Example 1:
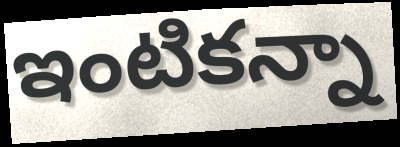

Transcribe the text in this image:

ఇంటికన్నా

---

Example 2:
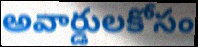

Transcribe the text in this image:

అవార్డులకోసం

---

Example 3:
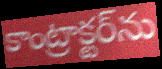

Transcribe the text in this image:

కాంట్రాక్టర్‌ను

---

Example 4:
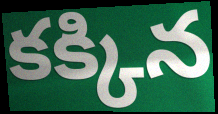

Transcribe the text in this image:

కక్కిన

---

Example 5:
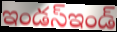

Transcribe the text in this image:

ఇండస్ఇండ్